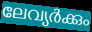
ലേവ്യർക്കും